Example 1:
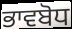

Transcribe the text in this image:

ਭਾਵਬੋਧ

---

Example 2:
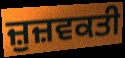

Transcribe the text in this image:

ਜ਼ੁਜ਼ਵਕਤੀ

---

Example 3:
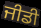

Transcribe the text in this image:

ਜੀਡੀ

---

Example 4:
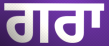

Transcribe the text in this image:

ਗਰਾ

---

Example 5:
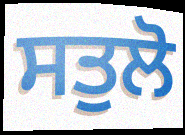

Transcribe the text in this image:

ਸਤੁਲੋ